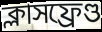
ক্লাসফ্রেণ্ড